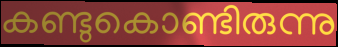
കണ്ടുകൊണ്ടിരുന്നു